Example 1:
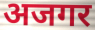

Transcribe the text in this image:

अजगर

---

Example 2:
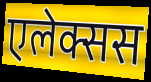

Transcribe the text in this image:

एलेक्सस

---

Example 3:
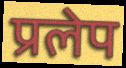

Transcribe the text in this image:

प्रलेप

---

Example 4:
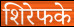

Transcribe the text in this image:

शिरेफके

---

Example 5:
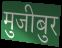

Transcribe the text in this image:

मुजीबुर